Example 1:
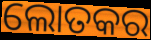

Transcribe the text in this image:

ଲୋତକର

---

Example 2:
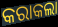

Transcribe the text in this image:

କରାକଲା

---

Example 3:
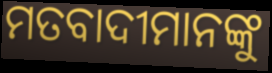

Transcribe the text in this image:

ମତବାଦୀମାନଙ୍କୁ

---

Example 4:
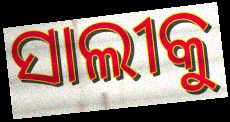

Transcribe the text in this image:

ସାଲୀକୁ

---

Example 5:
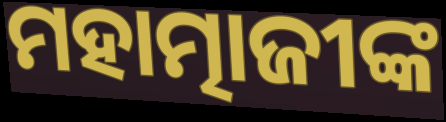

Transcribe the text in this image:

ମହାତ୍ମାଜୀଙ୍କ